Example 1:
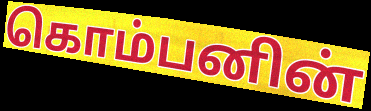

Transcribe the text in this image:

கொம்பனின்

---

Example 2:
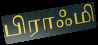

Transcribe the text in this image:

பிராஃமி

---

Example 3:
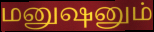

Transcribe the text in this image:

மனுஷனும்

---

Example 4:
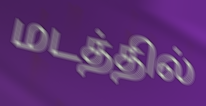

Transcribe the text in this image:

மடத்தில்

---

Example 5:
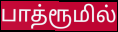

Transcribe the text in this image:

பாத்ரூமில்